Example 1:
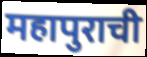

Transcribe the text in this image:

महापुराची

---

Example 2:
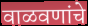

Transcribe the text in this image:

वाळवणांचे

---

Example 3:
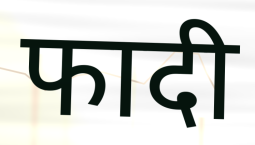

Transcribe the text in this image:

फादी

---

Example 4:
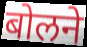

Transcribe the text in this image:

बोलने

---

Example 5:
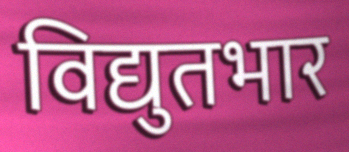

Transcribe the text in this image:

विद्युतभार